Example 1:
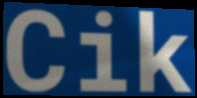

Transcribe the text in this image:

Cik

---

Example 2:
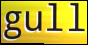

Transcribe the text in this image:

gull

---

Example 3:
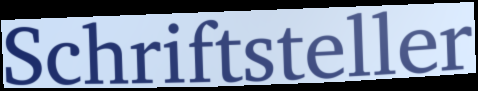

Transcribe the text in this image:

Schriftsteller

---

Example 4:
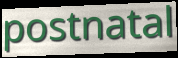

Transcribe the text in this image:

postnatal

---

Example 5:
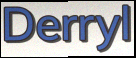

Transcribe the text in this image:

Derryl